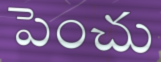
పెంచు